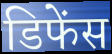
डिफेंस